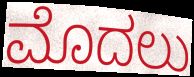
ಮೊದಲು